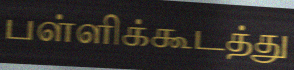
பள்ளிக்கூடத்து